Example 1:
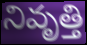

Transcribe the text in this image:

నివృత్తి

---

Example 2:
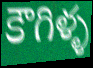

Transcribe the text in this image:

కౌగిళ్ళ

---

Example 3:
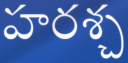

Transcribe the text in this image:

హరశ్చ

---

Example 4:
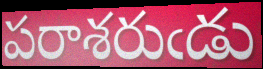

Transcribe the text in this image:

పరాశరుఁడు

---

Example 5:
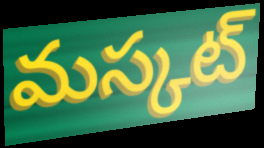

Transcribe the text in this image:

మస్కట్